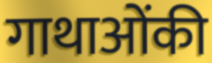
गाथाओंकी